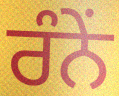
ਰੰਨੇਂ